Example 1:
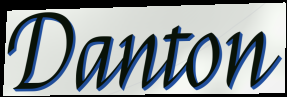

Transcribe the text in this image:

Danton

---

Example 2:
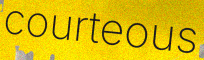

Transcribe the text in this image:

courteous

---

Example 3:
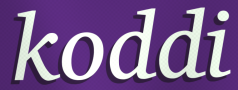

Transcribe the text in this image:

koddi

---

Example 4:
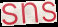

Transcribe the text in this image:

sns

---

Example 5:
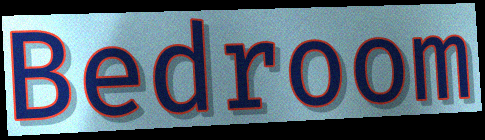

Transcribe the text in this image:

Bedroom